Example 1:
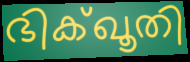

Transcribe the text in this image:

ഭിക്ഖൂതി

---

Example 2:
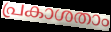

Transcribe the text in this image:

പ്രകാശതാം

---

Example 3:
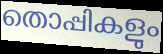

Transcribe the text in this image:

തൊപ്പികളും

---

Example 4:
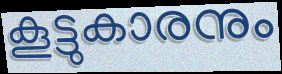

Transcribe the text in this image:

കൂട്ടുകാരനും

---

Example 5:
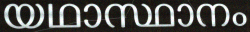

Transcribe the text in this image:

യഥാസ്ഥാനം